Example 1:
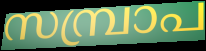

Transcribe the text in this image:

സമ്പ്രാപ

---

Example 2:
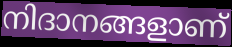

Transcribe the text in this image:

നിദാനങ്ങളാണ്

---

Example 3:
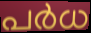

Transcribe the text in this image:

പർധ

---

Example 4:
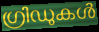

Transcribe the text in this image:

ഗ്രിഡുകൾ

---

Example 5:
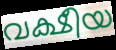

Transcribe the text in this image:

വക്ഷീയ